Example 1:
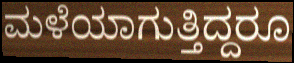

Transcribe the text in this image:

ಮಳೆಯಾಗುತ್ತಿದ್ದರೂ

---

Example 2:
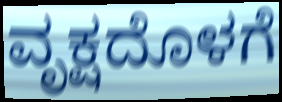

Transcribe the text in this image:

ವೃಕ್ಷದೊಳಗೆ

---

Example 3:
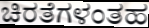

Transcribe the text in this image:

ಚಿರತೆಗಳಂತಹ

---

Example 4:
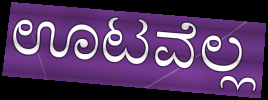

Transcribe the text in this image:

ಊಟವೆಲ್ಲ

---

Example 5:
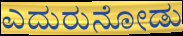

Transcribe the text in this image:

ಎದುರುನೋಡು